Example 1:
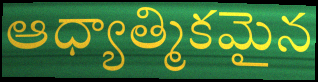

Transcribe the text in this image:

ఆధ్యాత్మికమైన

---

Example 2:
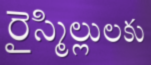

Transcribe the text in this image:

రైస్మిల్లులకు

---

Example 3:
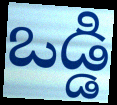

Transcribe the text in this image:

ఒడ్డి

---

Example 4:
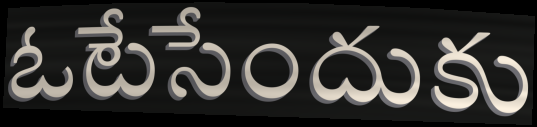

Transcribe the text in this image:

ఓటేసేందుకు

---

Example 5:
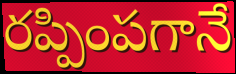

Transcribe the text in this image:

రప్పింపగానే